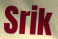
Srik